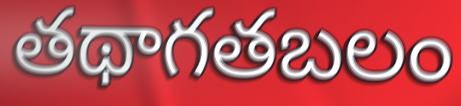
తథాగతబలం